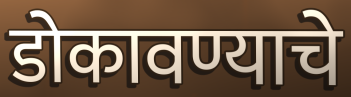
डोकावण्याचे